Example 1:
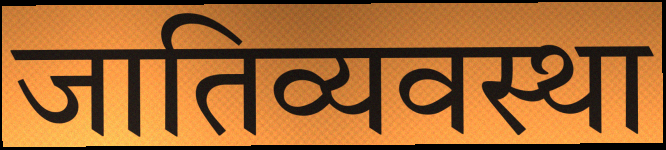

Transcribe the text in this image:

जातिव्यवस्था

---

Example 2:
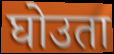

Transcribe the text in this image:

घोउता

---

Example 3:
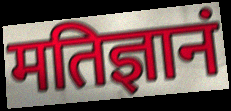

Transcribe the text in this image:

मतिज्ञानं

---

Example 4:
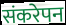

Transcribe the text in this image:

संकरेपन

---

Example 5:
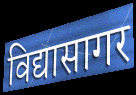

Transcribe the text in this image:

विद्यासागर